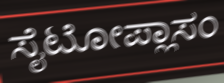
ಸೈಟೋಪ್ಲಾಸಂ